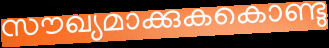
സൗഖ്യമാക്കുകകൊണ്ടു